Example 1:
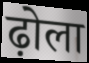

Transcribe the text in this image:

ढ़ोला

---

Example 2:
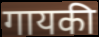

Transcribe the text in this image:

गायकी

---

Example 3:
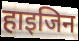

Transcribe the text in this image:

हाइजिन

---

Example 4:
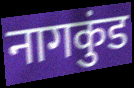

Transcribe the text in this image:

नागकुंड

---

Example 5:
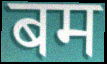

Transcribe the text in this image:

बम